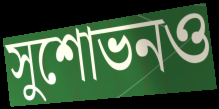
সুশোভনও